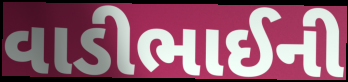
વાડીભાઈની